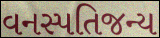
વનસ્પતિજન્ય